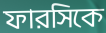
ফারসিকে